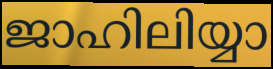
ജാഹിലിയ്യാ